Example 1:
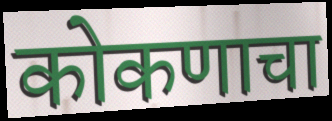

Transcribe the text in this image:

कोकणाचा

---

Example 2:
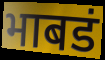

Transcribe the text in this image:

भाबडं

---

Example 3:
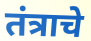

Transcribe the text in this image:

तंत्राचे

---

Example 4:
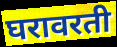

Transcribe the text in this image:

घरावरती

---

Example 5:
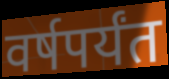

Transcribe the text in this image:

वर्षपर्यंत